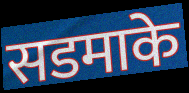
सडमाके